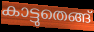
കാട്ടുതെങ്ങ്